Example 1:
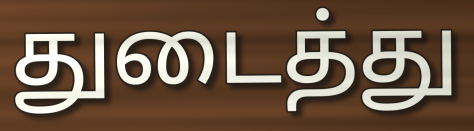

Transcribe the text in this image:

துடைத்து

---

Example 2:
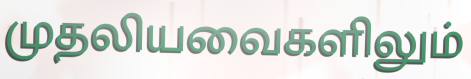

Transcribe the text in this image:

முதலியவைகளிலும்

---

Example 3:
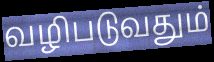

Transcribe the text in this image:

வழிபடுவதும்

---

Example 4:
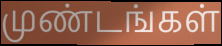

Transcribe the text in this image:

முண்டங்கள்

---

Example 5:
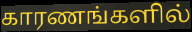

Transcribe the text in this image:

காரணங்களில்